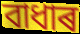
বাধাৰ